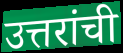
उत्तरांची